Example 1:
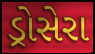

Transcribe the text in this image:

ડ્રોસેરા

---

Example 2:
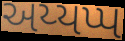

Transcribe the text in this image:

અય્યપ્પ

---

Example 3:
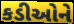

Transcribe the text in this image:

કડીઓને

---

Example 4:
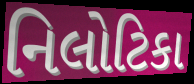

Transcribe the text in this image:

નિલોટિકા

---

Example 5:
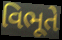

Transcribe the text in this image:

વિભૂતે